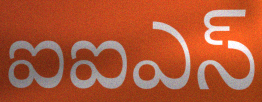
ఐఐఎస్